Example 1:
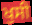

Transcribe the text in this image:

ਖੁਸੀ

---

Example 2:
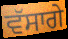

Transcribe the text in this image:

ਵੱਸਾਗੇ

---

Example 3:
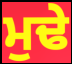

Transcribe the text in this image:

ਮੁਢੇ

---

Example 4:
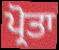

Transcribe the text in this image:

ਪ੍ਰੋਤਾ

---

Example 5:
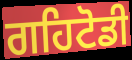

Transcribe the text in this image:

ਗਹਿਟੋਡੀ